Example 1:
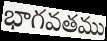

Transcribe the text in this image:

భాగవతము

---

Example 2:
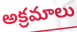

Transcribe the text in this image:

అక్రమాలు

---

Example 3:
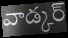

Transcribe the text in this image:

వాడ్కర్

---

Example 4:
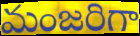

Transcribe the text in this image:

మంజరిగా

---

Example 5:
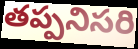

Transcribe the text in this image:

తప్పనిసరి